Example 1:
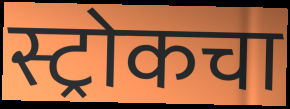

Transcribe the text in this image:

स्ट्रोकचा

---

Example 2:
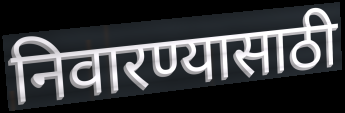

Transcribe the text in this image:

निवारण्यासाठी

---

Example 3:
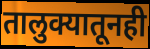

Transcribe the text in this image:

तालुक्यातूनही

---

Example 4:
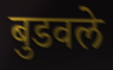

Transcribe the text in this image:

बुडवले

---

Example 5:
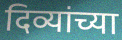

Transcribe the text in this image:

दिव्यांच्या